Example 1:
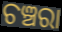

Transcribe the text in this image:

ଚଞ୍ଚରା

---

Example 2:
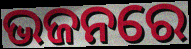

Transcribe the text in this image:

ଭଜନରେ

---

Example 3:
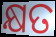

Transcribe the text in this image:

କ୍ଷତ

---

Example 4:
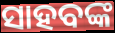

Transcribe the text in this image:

ସାହବଙ୍କ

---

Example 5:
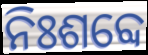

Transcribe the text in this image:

ନିଃଶବ୍ଦେ